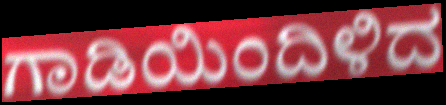
ಗಾಡಿಯಿಂದಿಳಿದ